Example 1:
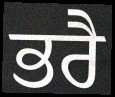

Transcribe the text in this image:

ਭਰੈ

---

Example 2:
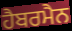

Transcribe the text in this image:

ਹੈਬਰਮੈਨ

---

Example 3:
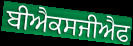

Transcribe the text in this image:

ਬੀਐਕਸਜੀਐਫ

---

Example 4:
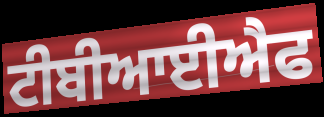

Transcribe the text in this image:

ਟੀਬੀਆਈਐਫ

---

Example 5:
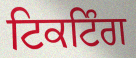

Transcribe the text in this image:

ਟਿਕਟਿੰਗ